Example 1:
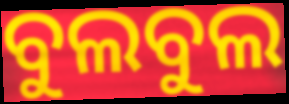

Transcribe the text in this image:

ବୁଲବୁଲ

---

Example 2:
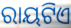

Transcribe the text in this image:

ରାୟଟିଏ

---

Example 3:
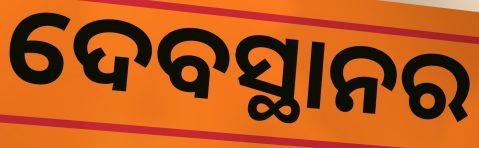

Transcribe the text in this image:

ଦେବସ୍ଥାନର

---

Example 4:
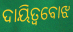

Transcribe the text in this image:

ଦାୟିତ୍ୱବୋଝ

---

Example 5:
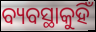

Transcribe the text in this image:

ବ୍ୟବସ୍ଥାକୁହିଁ